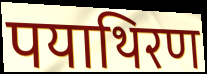
पयाथिरण